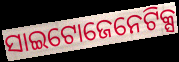
ସାଇଟୋଜେନେଟିକ୍ସ